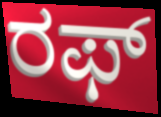
ರಫ್